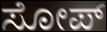
ಸೋಪ್